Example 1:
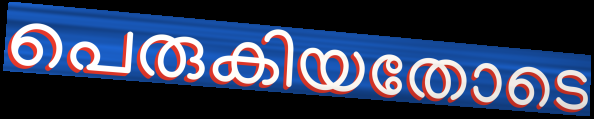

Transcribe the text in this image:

പെരുകിയതോടെ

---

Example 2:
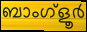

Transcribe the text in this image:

ബാംഗ്ളൂർ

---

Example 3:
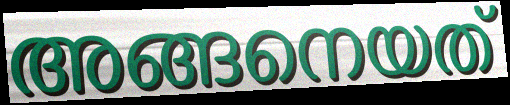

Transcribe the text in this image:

അങ്ങനെയത്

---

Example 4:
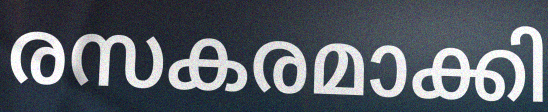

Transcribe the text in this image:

രസകരമാക്കി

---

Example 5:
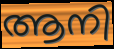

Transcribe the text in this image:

ആനി